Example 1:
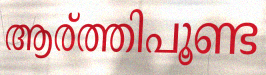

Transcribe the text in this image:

ആര്ത്തിപൂണ്ട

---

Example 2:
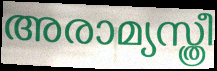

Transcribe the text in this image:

അരാമ്യസ്ത്രീ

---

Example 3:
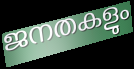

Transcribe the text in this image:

ജനതകളും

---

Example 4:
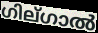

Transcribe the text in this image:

ഗില്ഗാൽ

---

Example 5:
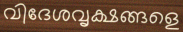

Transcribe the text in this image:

വിദേശവൃക്ഷങ്ങളെ